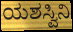
ಯಶಸ್ವಿನಿ